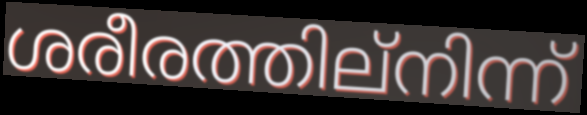
ശരീരത്തില്നിന്ന്